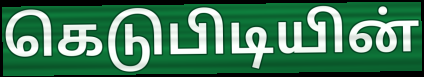
கெடுபிடியின்